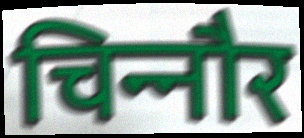
चिन्‍नौर